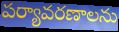
పర్యావరణాలను